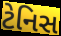
ટેનિસ